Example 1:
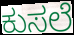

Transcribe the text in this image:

ಕುಸಲೆ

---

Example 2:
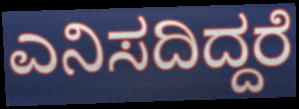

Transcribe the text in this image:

ಎನಿಸದಿದ್ದರೆ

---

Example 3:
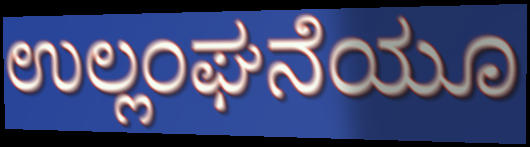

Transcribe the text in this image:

ಉಲ್ಲಂಘನೆಯೂ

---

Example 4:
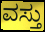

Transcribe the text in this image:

ವಸ್ತು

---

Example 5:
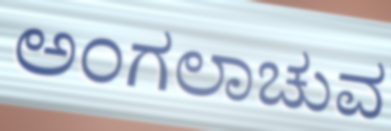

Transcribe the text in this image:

ಅಂಗಲಾಚುವ